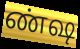
ண்ஷ